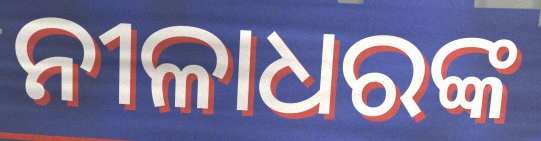
ନୀଳାଧରଙ୍କ